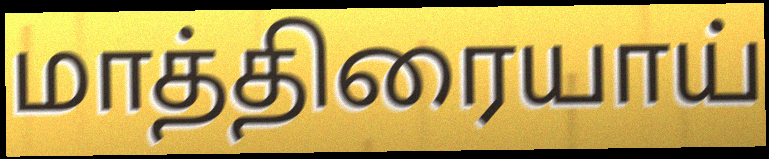
மாத்திரையாய்